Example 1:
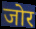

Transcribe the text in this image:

जोर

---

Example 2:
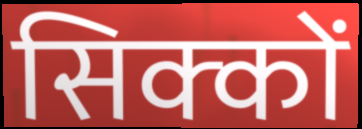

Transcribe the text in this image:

सिक्‍कों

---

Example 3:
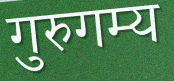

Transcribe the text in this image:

गुरुगम्य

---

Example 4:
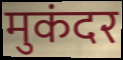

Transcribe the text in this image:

मुकंदर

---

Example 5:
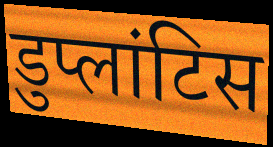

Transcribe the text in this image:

डुप्लांटिस